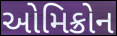
ઓમિક્રોન